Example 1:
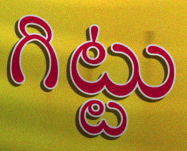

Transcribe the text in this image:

గిట్టు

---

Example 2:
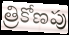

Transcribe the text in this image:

త్రికోణపు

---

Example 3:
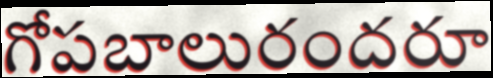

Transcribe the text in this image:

గోపబాలురందరూ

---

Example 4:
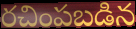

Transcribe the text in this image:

రచింపబడిన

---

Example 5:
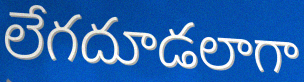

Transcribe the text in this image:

లేగదూడలాగా